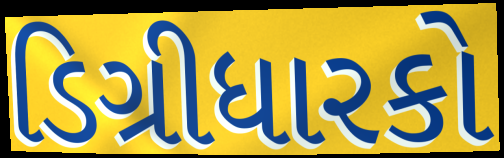
ડિગ્રીધારકો